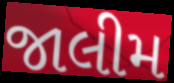
જાલીમ